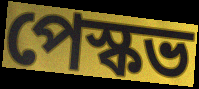
পেস্কভ